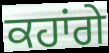
ਕਹਾਂਗੇ